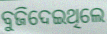
ବୁଜିଦେଇଥିଲେ